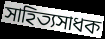
সাহিত্যসাধক